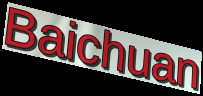
Baichuan